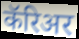
कॅरिअर